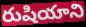
రుషియాని